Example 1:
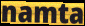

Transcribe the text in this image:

namta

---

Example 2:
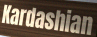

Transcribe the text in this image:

Kardashian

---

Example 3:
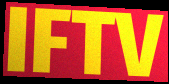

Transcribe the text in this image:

IFTV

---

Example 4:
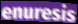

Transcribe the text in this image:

enuresis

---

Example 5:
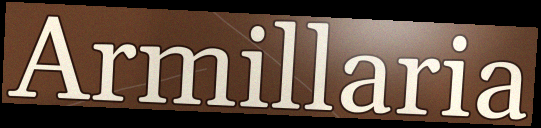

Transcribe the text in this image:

Armillaria